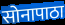
सोनापाठा